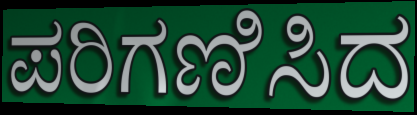
ಪರಿಗಣಿಸಿದ